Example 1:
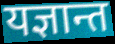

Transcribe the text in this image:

यज्ञान्त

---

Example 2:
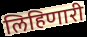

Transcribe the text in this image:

लिहिणारी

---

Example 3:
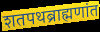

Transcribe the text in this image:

शतपथब्राह्मणांत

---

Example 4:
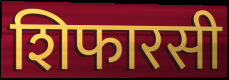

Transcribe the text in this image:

शिफारसी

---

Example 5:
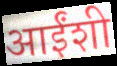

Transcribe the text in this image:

आईंशी